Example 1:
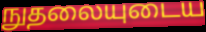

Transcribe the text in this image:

நுதலையுடைய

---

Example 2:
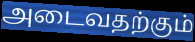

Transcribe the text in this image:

அடைவதற்கும்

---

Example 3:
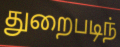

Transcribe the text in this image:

துறைபடிந்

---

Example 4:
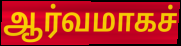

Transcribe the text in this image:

ஆர்வமாகச்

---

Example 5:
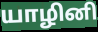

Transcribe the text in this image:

யாழினி